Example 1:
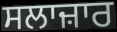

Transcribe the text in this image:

ਸਲਾਜ਼ਾਰ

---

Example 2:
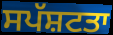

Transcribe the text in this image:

ਸਪੱਸ਼ਟਤਾ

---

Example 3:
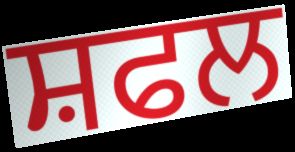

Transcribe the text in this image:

ਸ਼ਫਲ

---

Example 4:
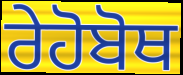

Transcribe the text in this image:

ਰੇਹੋਬੋਥ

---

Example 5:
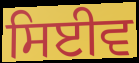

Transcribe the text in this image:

ਸਿਈਵ